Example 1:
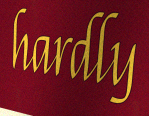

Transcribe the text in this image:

hardly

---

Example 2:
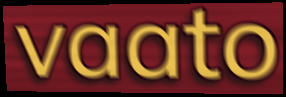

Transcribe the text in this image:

vaato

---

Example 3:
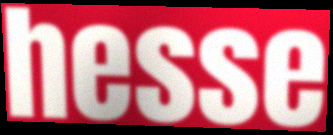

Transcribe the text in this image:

hesse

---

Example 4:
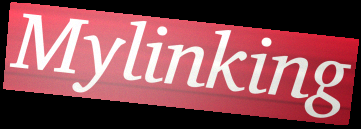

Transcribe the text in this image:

Mylinking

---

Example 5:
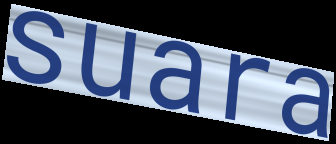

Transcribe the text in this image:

suara